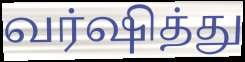
வர்ஷித்து